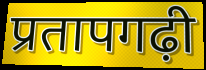
प्रतापगढ़ी